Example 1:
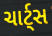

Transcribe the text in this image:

ચાર્ટ્સ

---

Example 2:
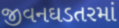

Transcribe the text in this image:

જીવનઘડતરમાં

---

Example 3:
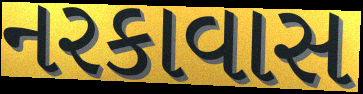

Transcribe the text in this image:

નરકાવાસ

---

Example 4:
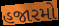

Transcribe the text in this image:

હજારમો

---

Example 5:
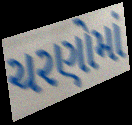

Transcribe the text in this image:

ચરણોમાં